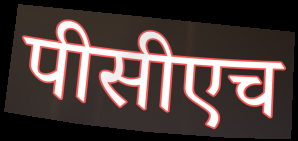
पीसीएच